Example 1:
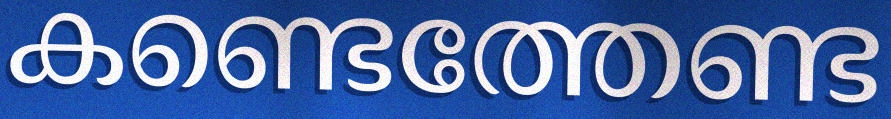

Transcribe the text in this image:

കണ്ടെത്തേണ്ട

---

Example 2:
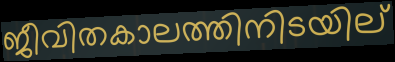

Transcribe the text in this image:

ജീവിതകാലത്തിനിടയില്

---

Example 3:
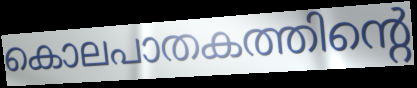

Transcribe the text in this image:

കൊലപാതകത്തിന്റെ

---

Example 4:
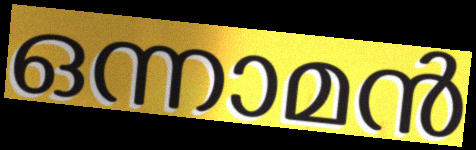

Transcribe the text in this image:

ഒന്നാമൻ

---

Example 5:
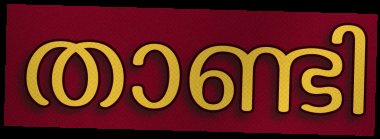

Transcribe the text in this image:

താണ്ടി